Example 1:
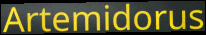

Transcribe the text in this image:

Artemidorus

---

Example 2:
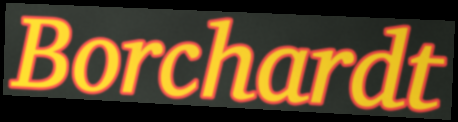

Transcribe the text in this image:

Borchardt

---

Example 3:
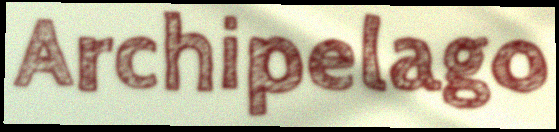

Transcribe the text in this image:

Archipelago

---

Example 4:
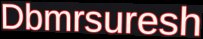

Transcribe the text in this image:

Dbmrsuresh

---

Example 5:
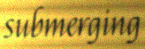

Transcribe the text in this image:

submerging